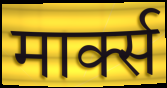
मार्क्स